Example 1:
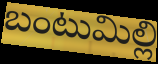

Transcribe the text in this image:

బంటుమిల్లి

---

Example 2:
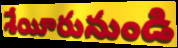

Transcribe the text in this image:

శేయీరునుండి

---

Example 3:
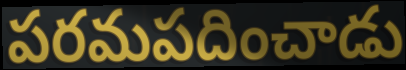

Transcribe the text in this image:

పరమపదించాడు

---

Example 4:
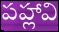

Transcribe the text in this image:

పహ్లావి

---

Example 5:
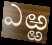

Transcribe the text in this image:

ఎఱ్ఱ